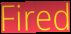
Fired